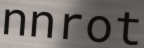
nnrot